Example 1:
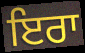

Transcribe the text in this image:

ਇਰਾ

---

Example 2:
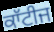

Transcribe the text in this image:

ਕਾੱਟੀਜ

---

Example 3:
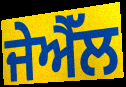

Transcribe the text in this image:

ਜੇਐੱਲ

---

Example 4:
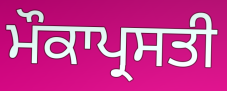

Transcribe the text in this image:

ਮੌਕਾਪ੍ਰਸਤੀ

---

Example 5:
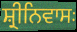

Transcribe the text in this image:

ਸ਼੍ਰੀਨਿਵਾਸਃ